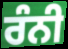
ਰੰਨੀ